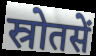
स्रोतसें